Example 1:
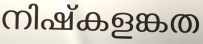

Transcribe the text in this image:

നിഷ്‌കളങ്കത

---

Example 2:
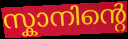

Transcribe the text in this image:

സ്കാനിന്റെ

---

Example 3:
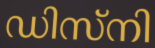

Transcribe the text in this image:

ഡിസ്നി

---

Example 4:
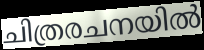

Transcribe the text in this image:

ചിത്രരചനയിൽ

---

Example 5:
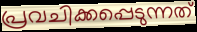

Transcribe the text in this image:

പ്രവചിക്കപ്പെടുന്നത്